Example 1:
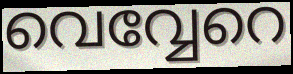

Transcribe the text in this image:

വെവ്വേറെ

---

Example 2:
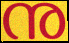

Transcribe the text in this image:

നു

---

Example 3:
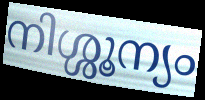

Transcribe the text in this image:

നിശ്ശൂന്യം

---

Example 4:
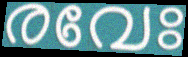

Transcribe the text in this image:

രവേഃ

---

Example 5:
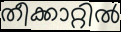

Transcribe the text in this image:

തീക്കാറ്റിൽ